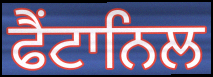
ਫੈਂਟਾਨਿਲ